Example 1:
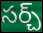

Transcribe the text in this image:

సర్చ్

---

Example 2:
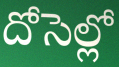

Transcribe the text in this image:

దోసెల్లో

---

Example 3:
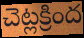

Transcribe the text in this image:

చెట్లక్రింద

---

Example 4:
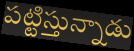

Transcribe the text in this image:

పట్టిస్తున్నాడు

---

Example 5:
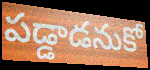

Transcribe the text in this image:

పడ్డాడనుకో